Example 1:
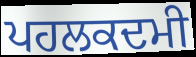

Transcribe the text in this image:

ਪਹਲਕਦਮੀ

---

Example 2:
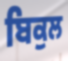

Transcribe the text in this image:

ਬਿਕੁਲ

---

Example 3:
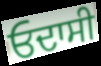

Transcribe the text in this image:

ਓਦਾਸੀ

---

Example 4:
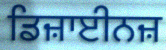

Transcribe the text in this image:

ਡਿਜ਼ਾਈਨਜ਼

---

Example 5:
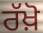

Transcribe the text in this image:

ਰੱਖ਼ੋ